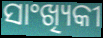
ସାଂଖ୍ୟିକୀ